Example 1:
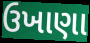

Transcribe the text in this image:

ઉખાણા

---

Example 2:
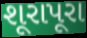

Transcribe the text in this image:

શૂરાપૂરા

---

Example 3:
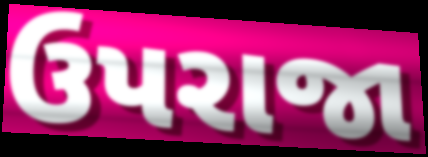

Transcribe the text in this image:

ઉપરાજા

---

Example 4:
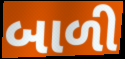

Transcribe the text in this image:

બાળી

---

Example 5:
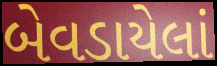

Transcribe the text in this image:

બેવડાયેલાં